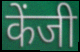
केंजी